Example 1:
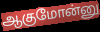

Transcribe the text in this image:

ஆகுமோன்னு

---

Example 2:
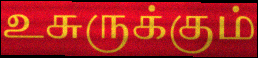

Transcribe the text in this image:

உசுருக்கும்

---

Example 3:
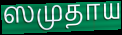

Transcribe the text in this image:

ஸமுதாய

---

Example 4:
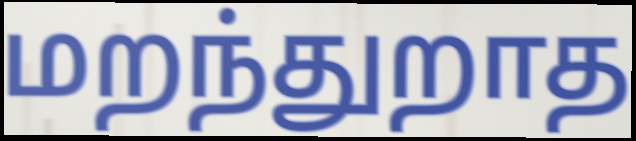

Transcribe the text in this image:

மறந்துறாத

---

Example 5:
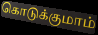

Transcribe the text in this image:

கொடுக்குமாம்